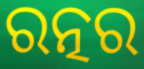
ରତ୍ନର